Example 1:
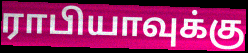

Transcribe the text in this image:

ராபியாவுக்கு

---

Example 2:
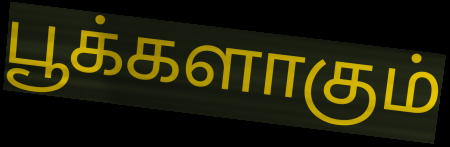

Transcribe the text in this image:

பூக்களாகும்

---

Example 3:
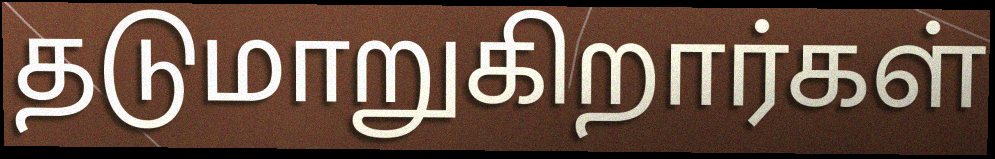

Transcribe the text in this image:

தடுமாறுகிறார்கள்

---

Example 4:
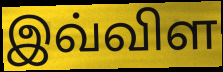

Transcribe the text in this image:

இவ்விள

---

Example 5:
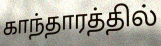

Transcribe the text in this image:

காந்தாரத்தில்